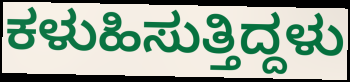
ಕಳುಹಿಸುತ್ತಿದ್ದಳು